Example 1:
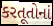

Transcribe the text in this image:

કરતૂતોનાં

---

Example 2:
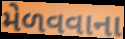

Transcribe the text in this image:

મેળવવાના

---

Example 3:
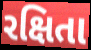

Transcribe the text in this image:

રક્ષિતા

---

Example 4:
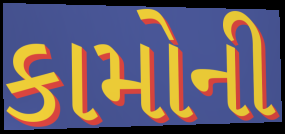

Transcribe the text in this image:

કામોની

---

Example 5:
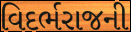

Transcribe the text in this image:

વિદર્ભરાજની